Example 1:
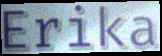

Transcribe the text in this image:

Erika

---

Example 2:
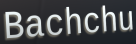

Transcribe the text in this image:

Bachchu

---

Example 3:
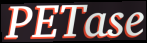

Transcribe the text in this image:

PETase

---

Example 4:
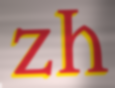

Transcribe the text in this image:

zh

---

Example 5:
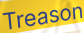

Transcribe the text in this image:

Treason